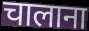
चालाना